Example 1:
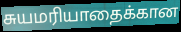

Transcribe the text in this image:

சுயமரியாதைக்கான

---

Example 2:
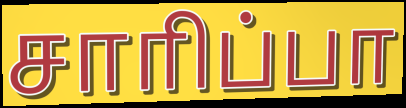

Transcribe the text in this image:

சாரிப்பா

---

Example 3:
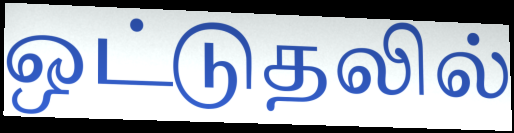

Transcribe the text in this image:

ஒட்டுதலில்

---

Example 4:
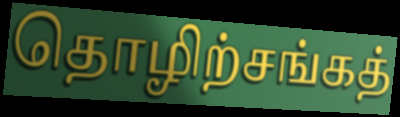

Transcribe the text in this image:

தொழிற்சங்கத்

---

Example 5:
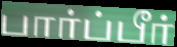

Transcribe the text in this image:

பார்ப்பீர்